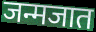
जन्मजात